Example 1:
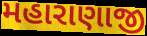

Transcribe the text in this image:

મહારાણાજી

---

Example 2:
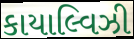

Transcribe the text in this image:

કાયાલ્વિઝી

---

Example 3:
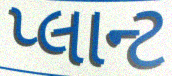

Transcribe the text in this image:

પ્લાન્ટ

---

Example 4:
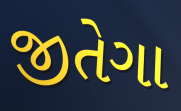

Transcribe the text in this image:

જીતેગા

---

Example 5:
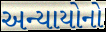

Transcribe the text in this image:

અન્યાયોનો